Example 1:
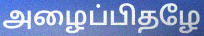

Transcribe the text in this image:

அழைப்பிதழே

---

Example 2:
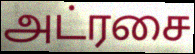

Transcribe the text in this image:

அட்ரசை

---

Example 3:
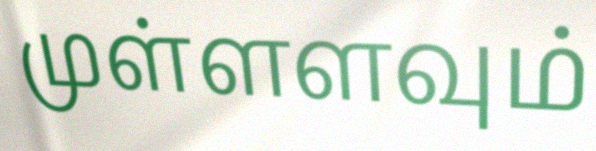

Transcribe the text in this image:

முள்ளளவும்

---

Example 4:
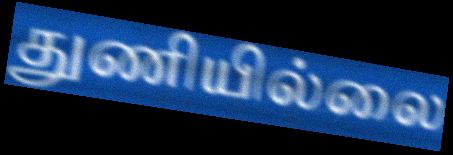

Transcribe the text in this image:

துணியில்லை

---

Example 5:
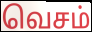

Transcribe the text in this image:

வெசம்